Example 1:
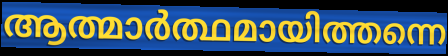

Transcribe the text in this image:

ആത്മാർത്ഥമായിത്തന്നെ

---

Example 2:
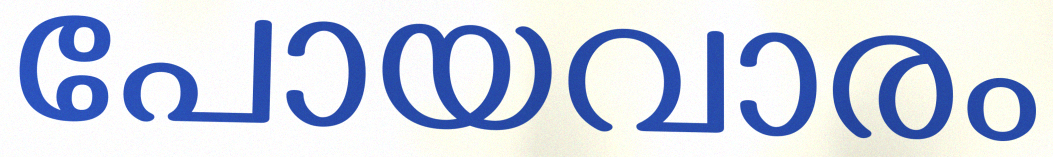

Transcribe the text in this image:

പോയവാരം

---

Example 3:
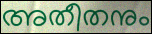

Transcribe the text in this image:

അതീതനും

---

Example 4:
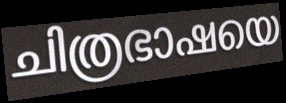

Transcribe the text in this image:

ചിത്രഭാഷയെ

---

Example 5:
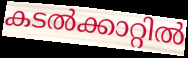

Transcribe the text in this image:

കടൽക്കാറ്റിൽ